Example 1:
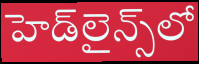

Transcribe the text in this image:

హెడ్‌లైన్స్‌లో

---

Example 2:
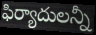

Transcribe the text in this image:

ఫిర్యాదులన్నీ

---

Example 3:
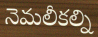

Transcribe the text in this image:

నెమలీకల్ని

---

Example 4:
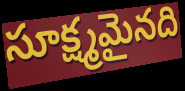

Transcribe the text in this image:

సూక్ష్మమైనది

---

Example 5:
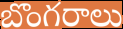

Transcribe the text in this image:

బొంగరాలు